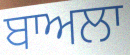
ਬਾਅਲਾ